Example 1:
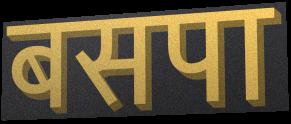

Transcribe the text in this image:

बसपा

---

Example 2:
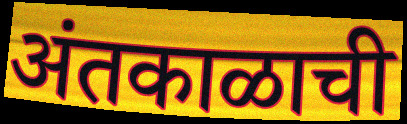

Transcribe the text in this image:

अंतकाळाची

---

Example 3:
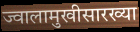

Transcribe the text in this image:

ज्वालामुखीसारख्या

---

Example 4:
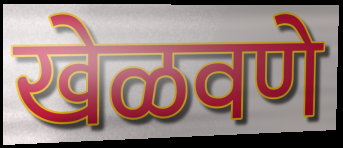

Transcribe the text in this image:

खेळवणे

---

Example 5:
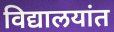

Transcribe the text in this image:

विद्यालयांत